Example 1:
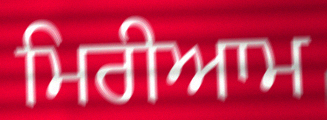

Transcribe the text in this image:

ਮਿਰੀਆਮ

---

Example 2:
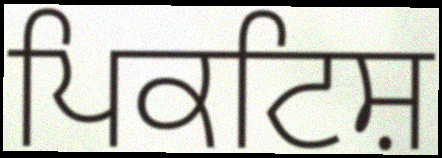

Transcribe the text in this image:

ਪਿਕਟਿਸ਼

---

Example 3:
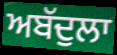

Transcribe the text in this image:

ਅਬੱਦੁਲਾ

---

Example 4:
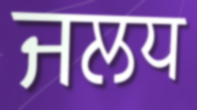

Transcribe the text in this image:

ਜਲਧ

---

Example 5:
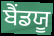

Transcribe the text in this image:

ਬੈਂਡਯੂ